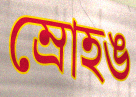
ম্রোহঙ